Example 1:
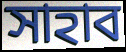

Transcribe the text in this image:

সাহাব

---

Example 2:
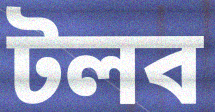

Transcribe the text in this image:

টলব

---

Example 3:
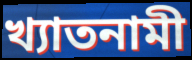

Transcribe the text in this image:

খ্যাতনামী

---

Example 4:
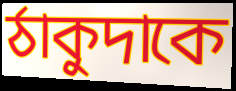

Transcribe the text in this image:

ঠাকুদাকে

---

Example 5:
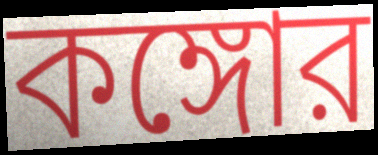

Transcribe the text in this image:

কঙ্গোর